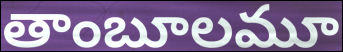
తాంబూలమూ